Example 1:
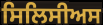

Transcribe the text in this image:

ਸਿਲਿਸੀਅਸ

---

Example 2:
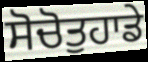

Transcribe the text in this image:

ਸੋਚੋਤੁਹਾਡੇ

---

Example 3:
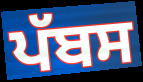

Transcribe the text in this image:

ਪੱਬਸ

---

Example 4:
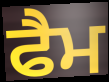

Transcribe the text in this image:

ਫੈਮ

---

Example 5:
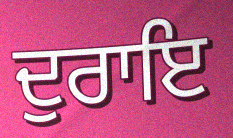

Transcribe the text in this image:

ਦੁਰਾਇ